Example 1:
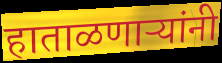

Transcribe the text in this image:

हाताळणाऱ्यांनी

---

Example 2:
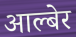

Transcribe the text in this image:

आल्बेर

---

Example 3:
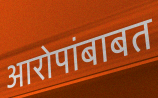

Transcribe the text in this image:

आरोपांबाबत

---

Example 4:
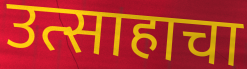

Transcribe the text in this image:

उत्साहाचा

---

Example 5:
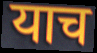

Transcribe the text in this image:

याच